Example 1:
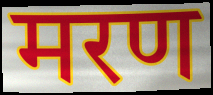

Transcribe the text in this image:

मरण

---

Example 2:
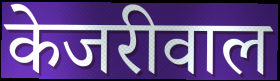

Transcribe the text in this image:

केजरीवाल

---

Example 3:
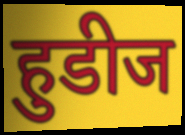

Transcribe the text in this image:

हुडीज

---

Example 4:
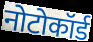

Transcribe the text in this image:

नोटोकॉर्ड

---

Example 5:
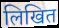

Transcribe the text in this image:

लिखित